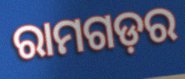
ରାମଗଡ଼ର